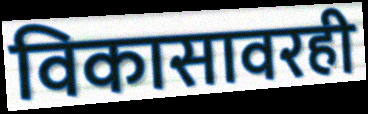
विकासावरही